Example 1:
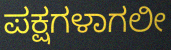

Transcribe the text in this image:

ಪಕ್ಷಗಳಾಗಲೀ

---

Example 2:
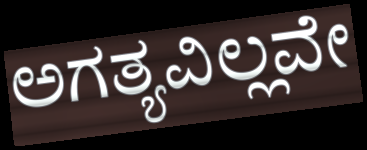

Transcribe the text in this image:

ಅಗತ್ಯವಿಲ್ಲವೇ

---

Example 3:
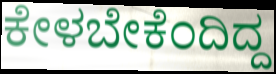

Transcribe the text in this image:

ಕೇಳಬೇಕೆಂದಿದ್ದ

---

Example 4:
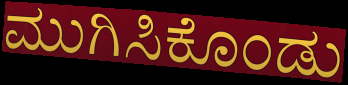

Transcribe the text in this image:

ಮುಗಿಸಿಕೊಂಡು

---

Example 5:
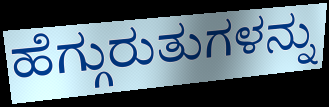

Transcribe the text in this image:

ಹೆಗ್ಗುರುತುಗಳನ್ನು